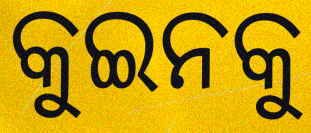
କୁଇନକୁ